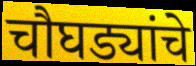
चौघड्यांचे